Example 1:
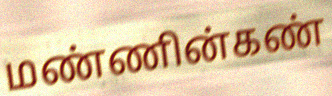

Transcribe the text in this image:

மண்ணின்கண்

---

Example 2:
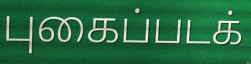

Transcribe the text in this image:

புகைப்படக்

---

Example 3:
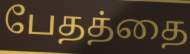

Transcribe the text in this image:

பேதத்தை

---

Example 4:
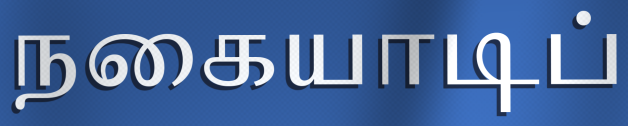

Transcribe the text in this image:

நகையாடிப்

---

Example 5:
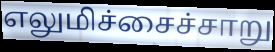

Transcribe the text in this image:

எலுமிச்சைச்சாறு